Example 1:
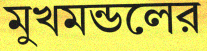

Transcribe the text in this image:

মুখমন্ডলের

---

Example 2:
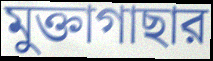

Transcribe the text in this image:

মুক্তাগাছার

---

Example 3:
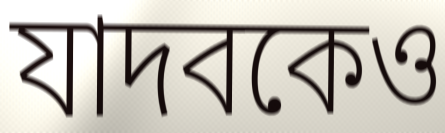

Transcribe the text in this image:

যাদবকেও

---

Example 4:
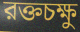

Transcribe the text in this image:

রক্তচক্ষু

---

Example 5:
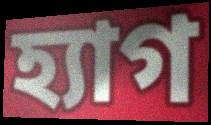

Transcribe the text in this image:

হ্যাগ